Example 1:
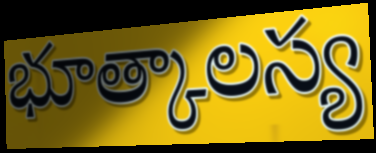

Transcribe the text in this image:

భూత్కాలస్య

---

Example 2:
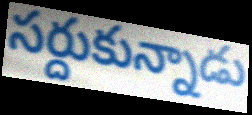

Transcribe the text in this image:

సర్దుకున్నాడు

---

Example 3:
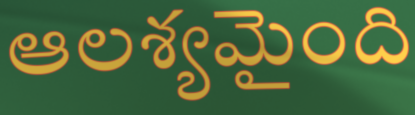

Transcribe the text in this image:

ఆలశ్యమైంది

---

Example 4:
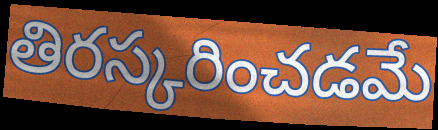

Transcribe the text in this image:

తిరస్కరించడమే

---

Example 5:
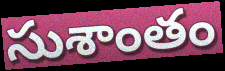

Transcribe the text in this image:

సుశాంతం